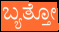
ಬ್ಯತ್ತೋ